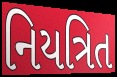
નિયત્રિત